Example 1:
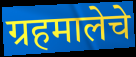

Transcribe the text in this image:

ग्रहमालेचे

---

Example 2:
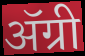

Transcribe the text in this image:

ॲग्री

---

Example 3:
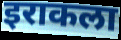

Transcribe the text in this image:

इराकला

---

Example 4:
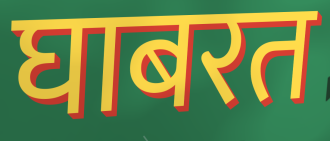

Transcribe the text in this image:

घाबरत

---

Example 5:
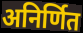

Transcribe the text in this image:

अनिर्णित